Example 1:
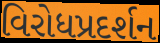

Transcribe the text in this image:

વિરોધપ્રદર્શન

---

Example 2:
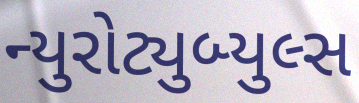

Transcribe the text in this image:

ન્યુરોટ્યુબ્યુલ્સ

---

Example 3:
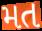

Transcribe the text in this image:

મત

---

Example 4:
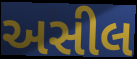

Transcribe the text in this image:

અસીલ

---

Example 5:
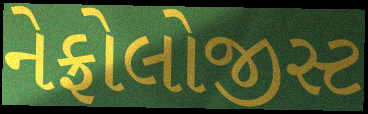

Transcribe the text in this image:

નેફ્રોલોજીસ્ટ